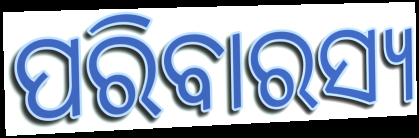
ପରିବାରସ୍ୟ